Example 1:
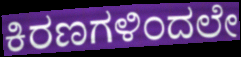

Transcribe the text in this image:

ಕಿರಣಗಳಿಂದಲೇ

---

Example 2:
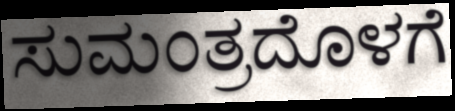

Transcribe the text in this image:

ಸುಮಂತ್ರದೊಳಗೆ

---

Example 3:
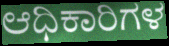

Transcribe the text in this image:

ಆಧಿಕಾರಿಗಳ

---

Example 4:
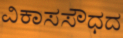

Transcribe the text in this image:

ವಿಕಾಸಸೌಧದ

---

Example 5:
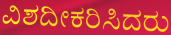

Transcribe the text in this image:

ವಿಶದೀಕರಿಸಿದರು